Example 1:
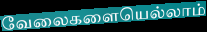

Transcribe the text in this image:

வேலைகளையெல்லாம்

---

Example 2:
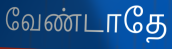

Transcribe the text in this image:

வேண்டாதே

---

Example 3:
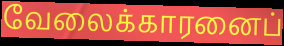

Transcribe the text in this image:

வேலைக்காரனைப்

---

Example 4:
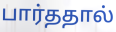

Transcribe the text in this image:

பார்ததால்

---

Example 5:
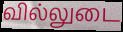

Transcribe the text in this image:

வில்லுடை